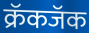
क्रॅकजॅक